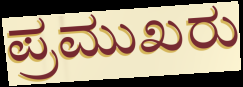
ಪ್ರಮುಖರು